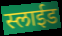
स्लाईड